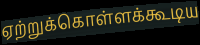
ஏற்றுக்கொள்ளக்கூடிய